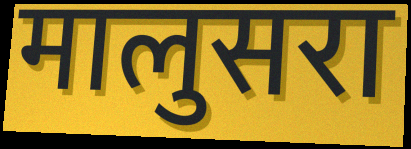
मालुसरा